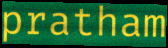
pratham